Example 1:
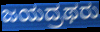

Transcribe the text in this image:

ಜಯದ್ರಥರು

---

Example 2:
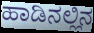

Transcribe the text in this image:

ಹಾಡಿನಲ್ಲಿನ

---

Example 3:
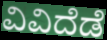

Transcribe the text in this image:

ವಿವಿದೆಡೆ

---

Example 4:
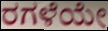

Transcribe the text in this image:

ರಗಳೆಯೇ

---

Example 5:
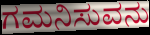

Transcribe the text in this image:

ಗಮನಿಸುವನು